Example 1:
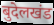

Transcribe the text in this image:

बुदेलखंड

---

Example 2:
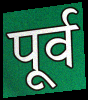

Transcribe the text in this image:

पूर्व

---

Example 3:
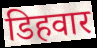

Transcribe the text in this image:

डिहवार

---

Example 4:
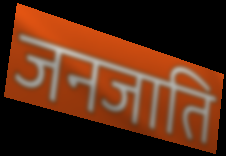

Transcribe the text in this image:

जनजाति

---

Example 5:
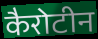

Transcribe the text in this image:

कैरोटीन